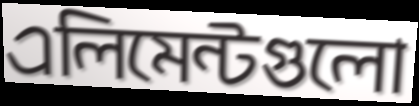
এলিমেন্টগুলো